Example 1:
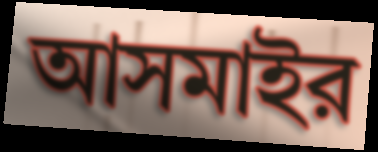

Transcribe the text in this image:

আসমাইর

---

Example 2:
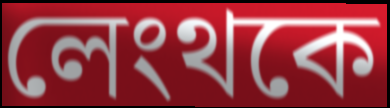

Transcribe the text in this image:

লেংথকে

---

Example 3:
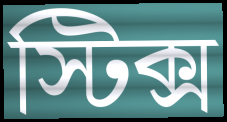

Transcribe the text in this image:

স্টিক্স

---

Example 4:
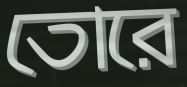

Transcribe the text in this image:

তোরে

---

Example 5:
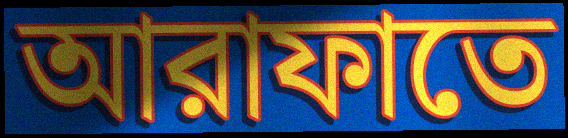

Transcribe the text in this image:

আরাফাতে